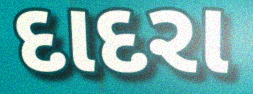
દાદરા